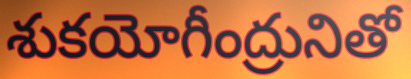
శుకయోగీంద్రునితో